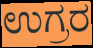
ಉಗ್ರರ